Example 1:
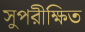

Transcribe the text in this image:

সুপরীক্ষিত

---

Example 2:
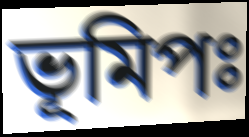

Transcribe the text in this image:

ভূমিপঃ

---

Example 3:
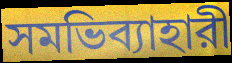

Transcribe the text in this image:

সমভিব্যাহারী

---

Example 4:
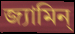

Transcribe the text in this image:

জ্যামিন্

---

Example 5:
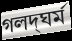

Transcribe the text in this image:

গলদ্‌ঘর্ম